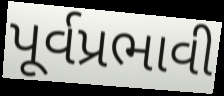
પૂર્વપ્રભાવી